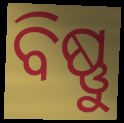
ବିଷ୍ଣୁ